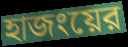
হাজংয়ের